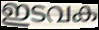
ഇടവക